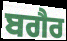
ਬਗੈਰ